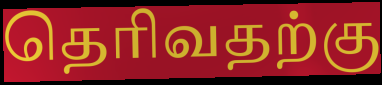
தெரிவதற்கு